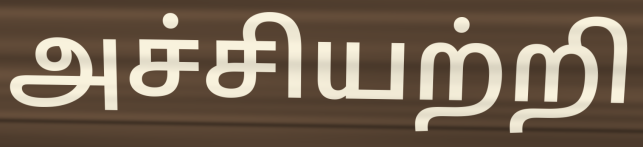
அச்சியற்றி